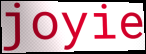
joyie